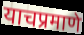
याचप्रमाणे